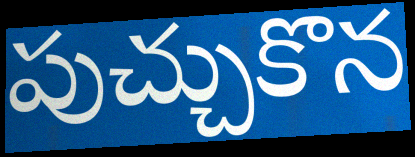
పుచ్చుకొన